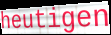
heutigen